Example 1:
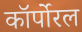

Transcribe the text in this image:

कॉर्पोरल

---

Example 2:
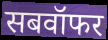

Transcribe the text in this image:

सबवॉफर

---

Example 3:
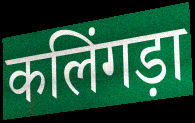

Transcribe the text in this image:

कलिंगड़ा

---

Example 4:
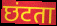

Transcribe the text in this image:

छंटता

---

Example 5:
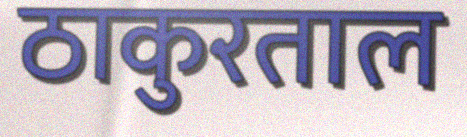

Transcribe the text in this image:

ठाकुरताल